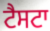
ਟੈਸਟਾ